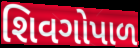
શિવગોપાળ